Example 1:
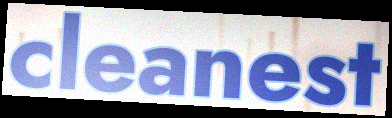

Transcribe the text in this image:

cleanest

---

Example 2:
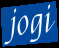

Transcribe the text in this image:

jogi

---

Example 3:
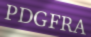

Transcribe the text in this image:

PDGFRA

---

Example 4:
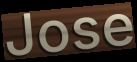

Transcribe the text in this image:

Jose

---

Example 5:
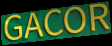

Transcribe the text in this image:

GACOR